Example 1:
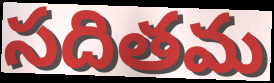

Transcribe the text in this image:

సదితమ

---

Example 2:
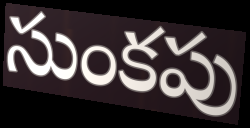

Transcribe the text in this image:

సుంకపు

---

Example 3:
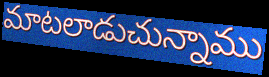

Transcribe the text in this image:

మాటలాడుచున్నాము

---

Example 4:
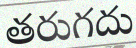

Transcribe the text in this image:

తరుగదు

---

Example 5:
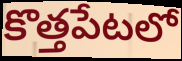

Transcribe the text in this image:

కొత్తపేటలో